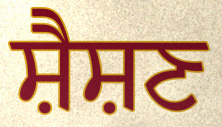
ਸ਼ੈਸ਼ਣ